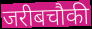
जरीबचौकी